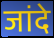
जांदे